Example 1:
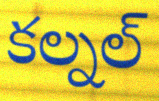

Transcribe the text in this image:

కల్నల్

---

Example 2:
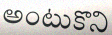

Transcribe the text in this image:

అంటుకొని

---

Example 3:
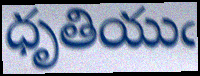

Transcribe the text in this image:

ధృతియుఁ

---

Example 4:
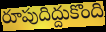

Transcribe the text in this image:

రూపుదిద్దుకొంది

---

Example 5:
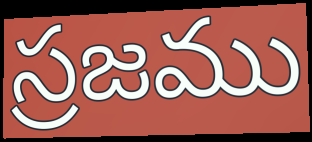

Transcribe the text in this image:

స్రజము